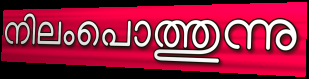
നിലംപൊത്തുന്നു